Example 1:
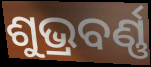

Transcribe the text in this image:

ଶୁଭ୍ରବର୍ଣ୍ଣ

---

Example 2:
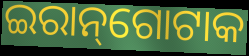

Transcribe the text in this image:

ଇରାନ୍‌ଗୋଟାକ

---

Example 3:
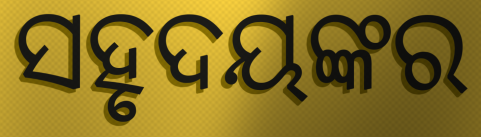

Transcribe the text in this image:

ସହୃଦୟଙ୍କର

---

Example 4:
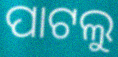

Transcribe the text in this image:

ପାଟଲୁ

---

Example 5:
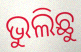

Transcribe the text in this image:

ଭୁଲିଛୁ